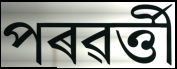
পৰৱৰ্ত্তী